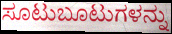
ಸೂಟುಬೂಟುಗಳನ್ನು